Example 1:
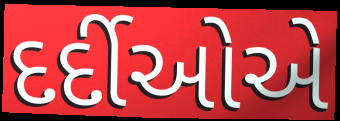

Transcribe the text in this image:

દર્દીઓએ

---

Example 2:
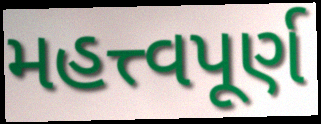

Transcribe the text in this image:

મહત્ત્વપૂર્ણ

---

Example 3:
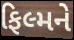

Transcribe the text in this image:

ફિલ્મને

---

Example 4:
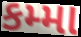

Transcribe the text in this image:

કમ્મા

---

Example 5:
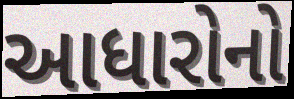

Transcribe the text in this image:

આધારોનો